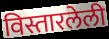
विस्तारलेली